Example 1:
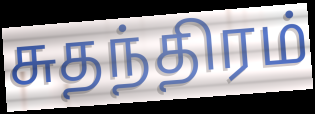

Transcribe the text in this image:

சுதந்திரம்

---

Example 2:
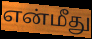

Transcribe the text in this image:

என்மீது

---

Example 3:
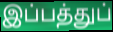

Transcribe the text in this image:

இப்பத்துப்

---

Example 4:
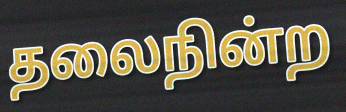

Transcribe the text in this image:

தலைநின்ற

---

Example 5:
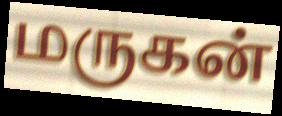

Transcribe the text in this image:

மருகன்